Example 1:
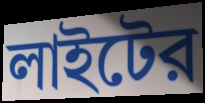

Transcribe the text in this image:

লাইটের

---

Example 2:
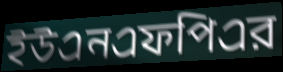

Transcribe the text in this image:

ইউএনএফপিএর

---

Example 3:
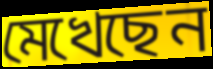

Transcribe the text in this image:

মেখেছেন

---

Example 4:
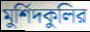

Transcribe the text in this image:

মুর্শিদকুলির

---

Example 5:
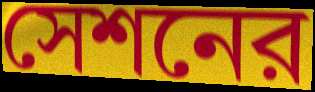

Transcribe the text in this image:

সেশনের